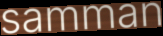
samman